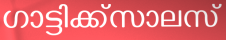
ഗാട്ടിക്ക്സാലസ്